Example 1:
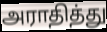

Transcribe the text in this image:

அராதித்து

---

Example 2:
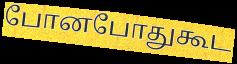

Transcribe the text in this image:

போனபோதுகூட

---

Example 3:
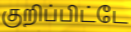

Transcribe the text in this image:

குறிப்பிட்டே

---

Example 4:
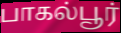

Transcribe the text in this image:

பாகல்பூர்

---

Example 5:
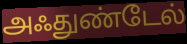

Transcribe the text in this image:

அஃதுண்டேல்